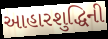
આહારશુદ્ધિની